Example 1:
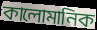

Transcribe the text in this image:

কালোমানিক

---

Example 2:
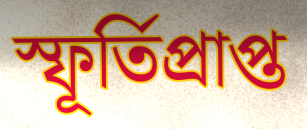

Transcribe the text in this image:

স্ফূর্তিপ্রাপ্ত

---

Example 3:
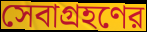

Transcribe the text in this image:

সেবাগ্রহণের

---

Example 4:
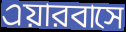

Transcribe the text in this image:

এয়ারবাসে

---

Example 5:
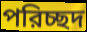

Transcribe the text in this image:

পরিচ্ছদ